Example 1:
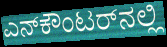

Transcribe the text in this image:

ಎನ್‌ಕೌಂಟರ್‌ನಲ್ಲಿ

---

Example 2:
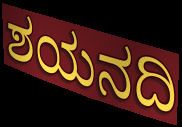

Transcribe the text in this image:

ಶಯನದಿ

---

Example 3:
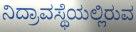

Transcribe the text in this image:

ನಿದ್ರಾವಸ್ಥೆಯಲ್ಲಿರುವ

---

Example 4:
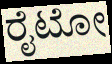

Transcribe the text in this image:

ರೈಟೋ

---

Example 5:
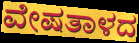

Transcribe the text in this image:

ವೇಷತಾಳದ